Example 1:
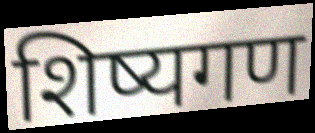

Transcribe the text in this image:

शिष्यगण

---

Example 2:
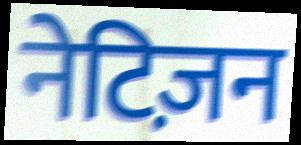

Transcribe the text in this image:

नेटिज़न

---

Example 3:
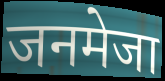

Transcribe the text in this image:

जनमेजा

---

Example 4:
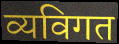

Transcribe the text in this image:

व्यविगत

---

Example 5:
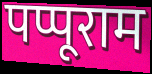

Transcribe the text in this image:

पप्पूराम